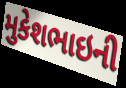
મુકેશભાઇની